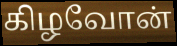
கிழவோன்